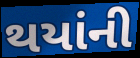
થયાંની